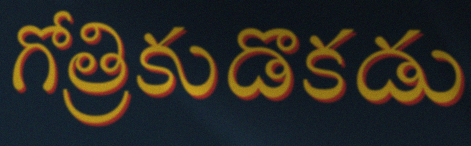
గోత్రికుడొకడు